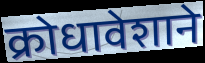
क्रोधावेशाने